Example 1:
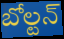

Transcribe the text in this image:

బోల్టన్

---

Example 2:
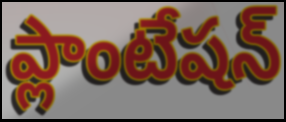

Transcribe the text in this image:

ప్లాంటేషన్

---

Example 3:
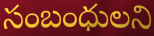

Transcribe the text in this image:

సంబంధులని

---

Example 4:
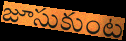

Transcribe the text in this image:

జూసుకుంట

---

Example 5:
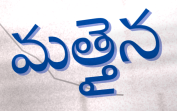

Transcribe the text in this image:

మత్తైన